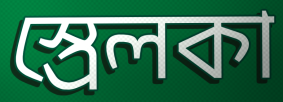
স্ত্রেলকা